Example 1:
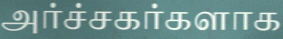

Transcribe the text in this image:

அர்ச்சகர்களாக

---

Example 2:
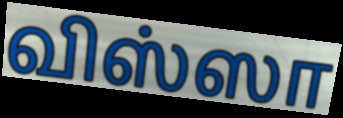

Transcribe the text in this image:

விஸ்ஸா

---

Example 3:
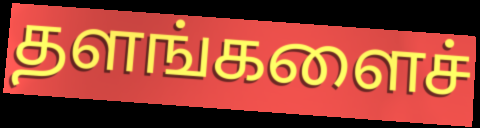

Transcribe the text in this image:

தளங்களைச்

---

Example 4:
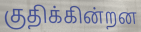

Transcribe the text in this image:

குதிக்கின்றன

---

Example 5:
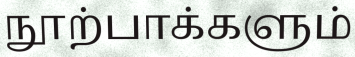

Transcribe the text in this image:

நூற்பாக்களும்